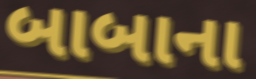
બાબાના